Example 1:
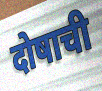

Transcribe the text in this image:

दोषाची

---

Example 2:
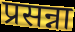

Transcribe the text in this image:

प्रसन्ना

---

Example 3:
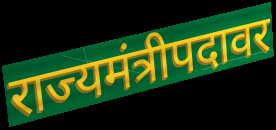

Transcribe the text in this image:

राज्यमंत्रीपदावर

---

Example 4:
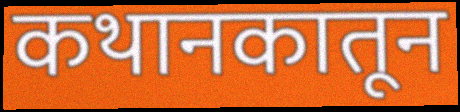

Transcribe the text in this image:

कथानकातून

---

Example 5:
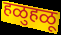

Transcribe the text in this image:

हळुहळू